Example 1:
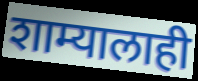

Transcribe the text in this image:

शाम्यालाही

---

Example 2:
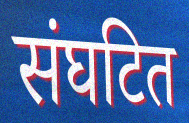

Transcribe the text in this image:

संघटित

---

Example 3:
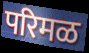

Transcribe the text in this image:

परिमळ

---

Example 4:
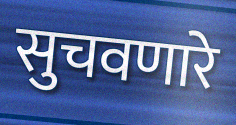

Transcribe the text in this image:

सुचवणारे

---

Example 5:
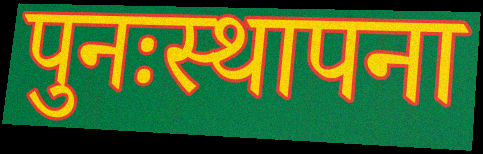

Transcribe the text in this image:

पुनःस्थापना